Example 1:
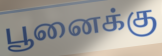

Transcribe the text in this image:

பூனைக்கு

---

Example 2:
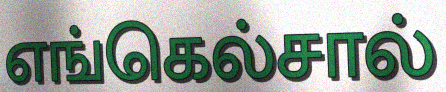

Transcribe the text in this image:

எங்கெல்சால்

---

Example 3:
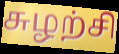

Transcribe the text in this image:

சுழற்சி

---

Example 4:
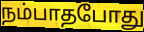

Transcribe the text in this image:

நம்பாதபோது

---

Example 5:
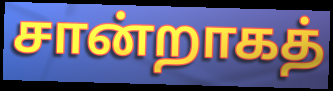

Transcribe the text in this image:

சான்றாகத்